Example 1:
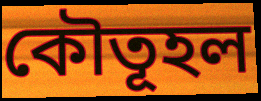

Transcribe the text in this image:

কৌতূহল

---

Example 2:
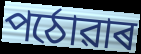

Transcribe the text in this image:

পঠোৱাৰ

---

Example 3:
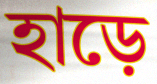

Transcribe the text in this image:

হাড়ে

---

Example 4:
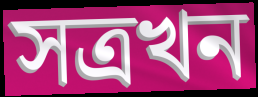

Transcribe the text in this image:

সত্ৰখন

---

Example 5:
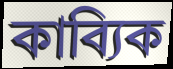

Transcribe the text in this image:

কাব্যিক